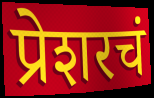
प्रेशरचं